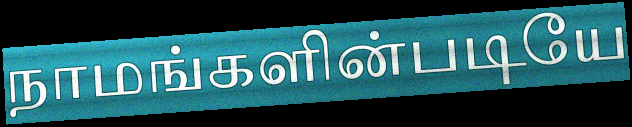
நாமங்களின்படியே